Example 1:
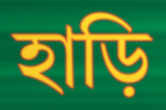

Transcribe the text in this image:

হাড়ি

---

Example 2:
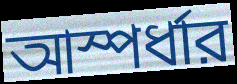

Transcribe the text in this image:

আস্পর্ধার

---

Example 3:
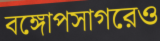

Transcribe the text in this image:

বঙ্গোপসাগরেও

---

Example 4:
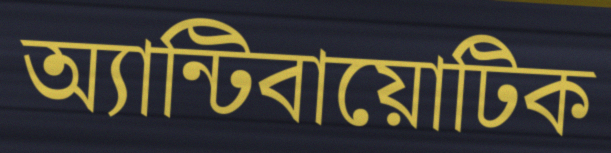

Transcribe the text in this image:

অ্যান্টিবায়োটিক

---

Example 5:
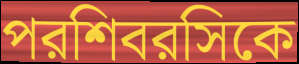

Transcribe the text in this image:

পরশিবরসিকে